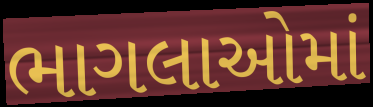
ભાગલાઓમાં